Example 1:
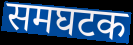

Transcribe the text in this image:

समघटक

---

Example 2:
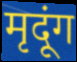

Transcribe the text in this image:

मृदूंग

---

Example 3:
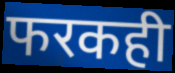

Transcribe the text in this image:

फरकही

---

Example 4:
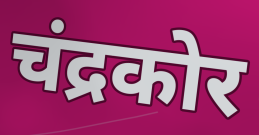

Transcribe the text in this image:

चंद्रकोर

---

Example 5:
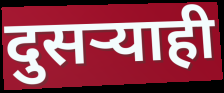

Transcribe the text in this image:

दुसऱ्याही